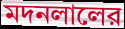
মদনলালের